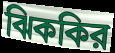
ঝিককির